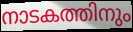
നാടകത്തിനും